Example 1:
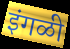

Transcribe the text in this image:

इंगळी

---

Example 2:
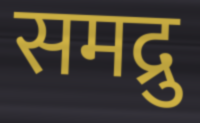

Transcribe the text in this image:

समद्रु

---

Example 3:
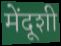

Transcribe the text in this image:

मेंदूशी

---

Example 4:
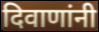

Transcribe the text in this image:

दिवाणांनी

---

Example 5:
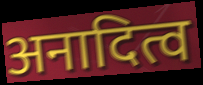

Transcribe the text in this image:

अनादित्व